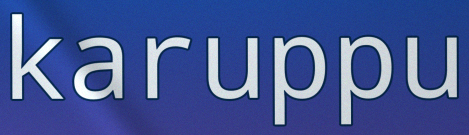
karuppu